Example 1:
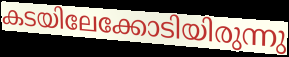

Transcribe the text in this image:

കടയിലേക്കോടിയിരുന്നു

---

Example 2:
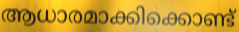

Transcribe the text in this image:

ആധാരമാക്കിക്കൊണ്ട്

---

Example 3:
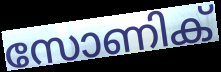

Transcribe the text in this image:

സോണിക്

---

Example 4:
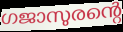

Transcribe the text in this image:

ഗജാസുരന്റെ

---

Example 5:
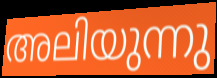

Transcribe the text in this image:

അലിയുന്നു